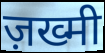
ज़ख्मी